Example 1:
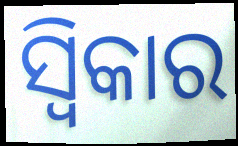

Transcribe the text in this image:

ସ୍ୱିକାର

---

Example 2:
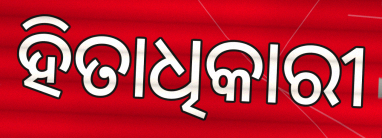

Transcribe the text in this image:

ହିତାଧିକାରୀ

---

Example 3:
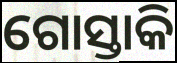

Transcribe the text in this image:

ଗୋସ୍ତାକି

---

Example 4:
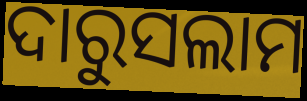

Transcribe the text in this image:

ଦାରୁସଲାମ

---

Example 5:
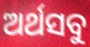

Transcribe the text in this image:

ଅର୍ଥସବୁ